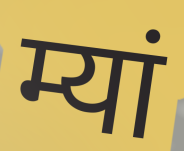
म्यां